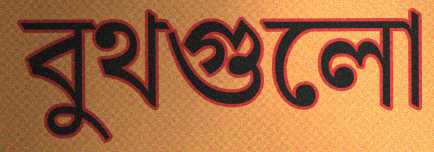
বুথগুলো